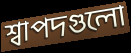
শ্বাপদগুলো